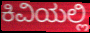
ಕಿವಿಯಲ್ಲಿ